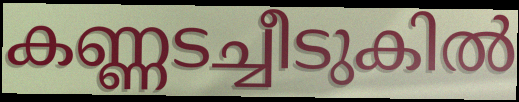
കണ്ണടച്ചീടുകിൽ